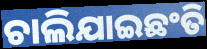
ଚାଲିଯାଇଛଂତି